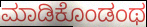
ಮಾಡಿಕೊಂಡಂಥ